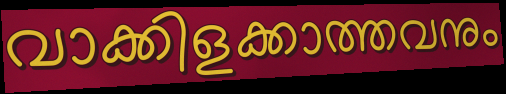
വാക്കിളക്കാത്തവനും